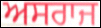
ਅਸਰਾਜ